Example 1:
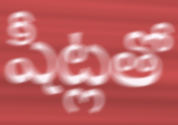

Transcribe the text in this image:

షీట్లతో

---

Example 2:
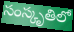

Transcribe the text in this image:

సంస్కృతిలో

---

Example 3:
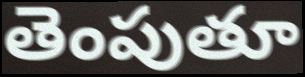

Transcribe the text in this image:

తెంపుతూ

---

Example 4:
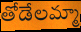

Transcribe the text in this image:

తోడేలమ్మా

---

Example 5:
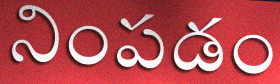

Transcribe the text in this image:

నింపడం